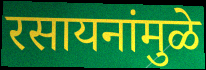
रसायनांमुळे